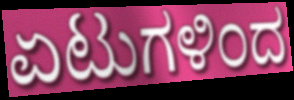
ಏಟುಗಳಿಂದ